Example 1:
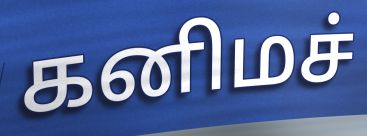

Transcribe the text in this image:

கனிமச்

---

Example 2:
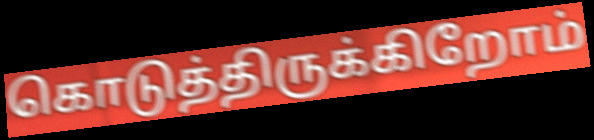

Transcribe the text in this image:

கொடுத்திருக்கிறோம்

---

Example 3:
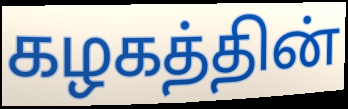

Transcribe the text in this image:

கழகத்தின்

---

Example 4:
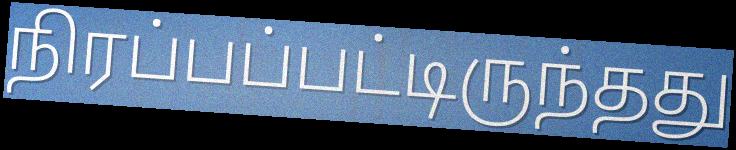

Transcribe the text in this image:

நிரப்பப்பட்டிருந்தது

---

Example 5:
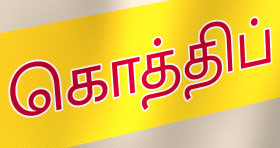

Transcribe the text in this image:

கொத்திப்